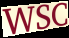
WSC